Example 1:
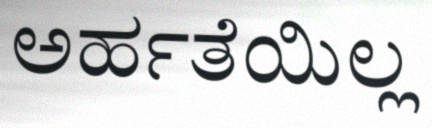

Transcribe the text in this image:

ಅರ್ಹತೆಯಿಲ್ಲ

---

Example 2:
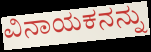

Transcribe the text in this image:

ವಿನಾಯಕನನ್ನು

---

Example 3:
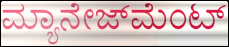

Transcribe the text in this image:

ಮ್ಯಾನೇಜ್‍ಮೆಂಟ್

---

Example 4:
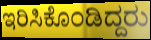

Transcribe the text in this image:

ಇರಿಸಿಕೊಂಡಿದ್ದರು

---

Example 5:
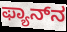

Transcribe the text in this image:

ಫ್ಯಾನ್‌ನ